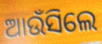
ଆଉଁସିଲେ